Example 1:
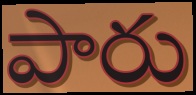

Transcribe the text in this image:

పారు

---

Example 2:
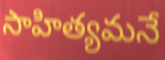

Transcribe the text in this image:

సాహిత్యమనే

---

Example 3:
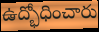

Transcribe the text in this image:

ఉద్భోధించారు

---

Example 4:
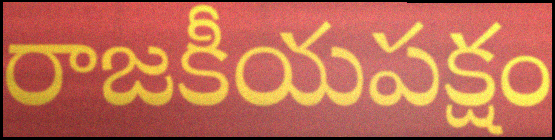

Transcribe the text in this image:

రాజకీయపక్షం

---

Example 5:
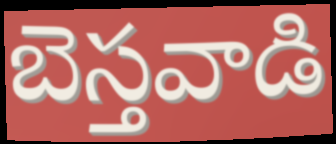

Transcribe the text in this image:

బెస్తవాడి